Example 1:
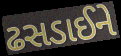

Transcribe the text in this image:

ઢસડાઈને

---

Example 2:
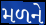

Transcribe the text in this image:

મળને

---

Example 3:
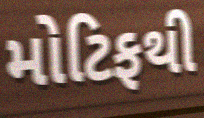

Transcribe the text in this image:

મોટિફથી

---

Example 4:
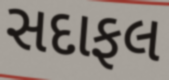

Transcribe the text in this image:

સદાફલ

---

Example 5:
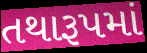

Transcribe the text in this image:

તથારૂપમાં